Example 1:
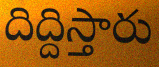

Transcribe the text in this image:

దిద్దిస్తారు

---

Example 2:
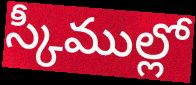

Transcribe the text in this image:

స్కీముల్లో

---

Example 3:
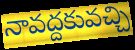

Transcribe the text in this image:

నావద్దకువచ్చి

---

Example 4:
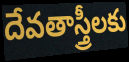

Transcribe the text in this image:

దేవతాస్త్రీలకు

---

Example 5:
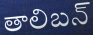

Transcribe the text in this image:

తాలిబన్